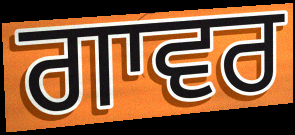
ਗਾਵਰ